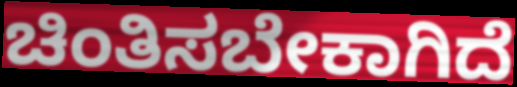
ಚಿಂತಿಸಬೇಕಾಗಿದೆ